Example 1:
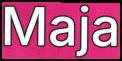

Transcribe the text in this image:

Maja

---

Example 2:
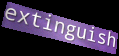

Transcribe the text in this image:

extinguish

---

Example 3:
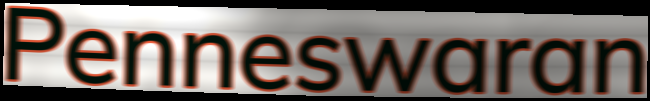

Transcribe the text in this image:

Penneswaran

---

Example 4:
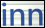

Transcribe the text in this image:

inn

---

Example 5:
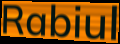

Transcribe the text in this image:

Rabiul